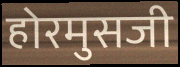
होरमुसजी